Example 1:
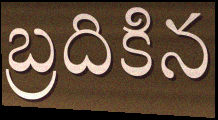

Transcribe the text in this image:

బ్రదికిన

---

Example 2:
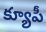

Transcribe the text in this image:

క్యూపీ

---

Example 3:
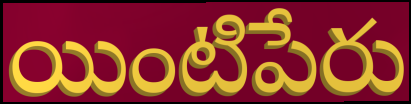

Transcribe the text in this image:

యింటిపేరు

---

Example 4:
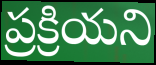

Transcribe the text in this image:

ప్రక్రియని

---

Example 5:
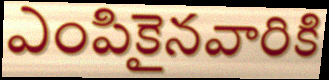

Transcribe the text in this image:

ఎంపికైనవారికి